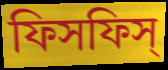
ফিসফিস্